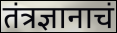
तंत्रज्ञानाचं